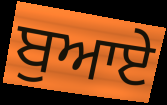
ਬੁਆਏ